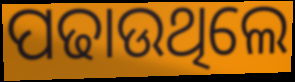
ପଢାଉଥିଲେ